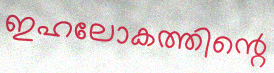
ഇഹലോകത്തിന്റെ